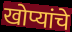
खोप्यांचे